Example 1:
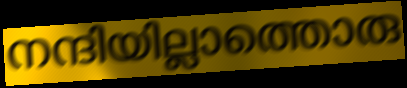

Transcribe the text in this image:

നന്ദിയില്ലാത്തൊരു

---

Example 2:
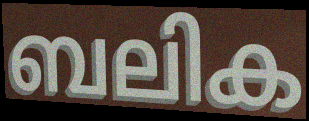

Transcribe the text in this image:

ബലിക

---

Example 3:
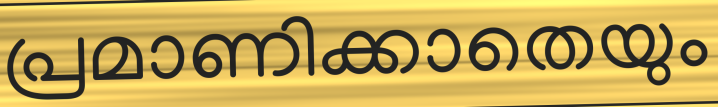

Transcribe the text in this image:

പ്രമാണിക്കാതെയും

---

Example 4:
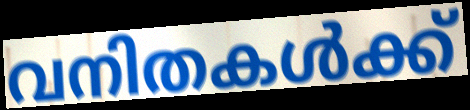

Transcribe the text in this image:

വനിതകൾക്ക്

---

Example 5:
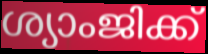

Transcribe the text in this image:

ശ്യാംജിക്ക്